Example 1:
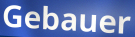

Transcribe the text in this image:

Gebauer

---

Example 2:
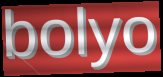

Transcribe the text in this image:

bolyo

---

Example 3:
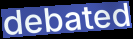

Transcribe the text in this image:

debated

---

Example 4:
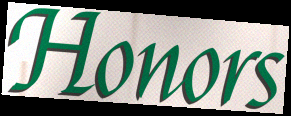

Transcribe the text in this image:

Honors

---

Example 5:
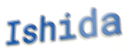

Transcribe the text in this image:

Ishida